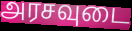
அரசவுடை